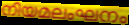
നിയമലംഘനം